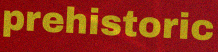
prehistoric